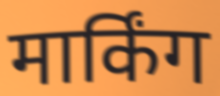
मार्किंग